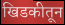
खिडकीतून